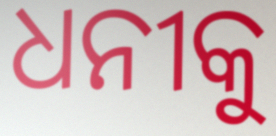
ଧନୀକୁ